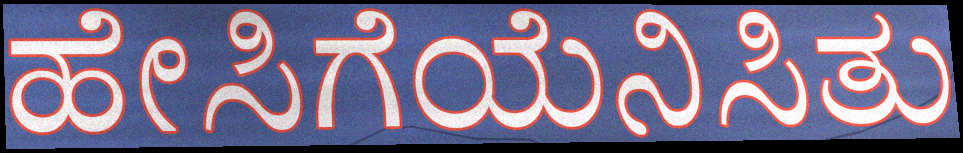
ಹೇಸಿಗೆಯೆನಿಸಿತು